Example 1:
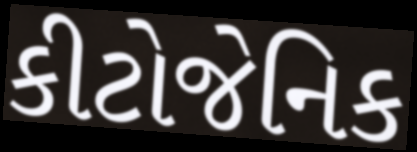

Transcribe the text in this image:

કીટોજેનિક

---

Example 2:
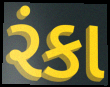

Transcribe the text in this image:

રંકા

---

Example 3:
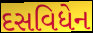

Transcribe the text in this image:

દસવિધેન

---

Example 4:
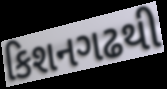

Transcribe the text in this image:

કિશનગઢથી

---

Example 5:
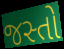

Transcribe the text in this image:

જસ્તો